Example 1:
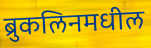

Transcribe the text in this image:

ब्रुकलिनमधील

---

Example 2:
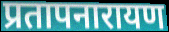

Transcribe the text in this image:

प्रतापनारायण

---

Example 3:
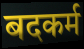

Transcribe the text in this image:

बदकर्म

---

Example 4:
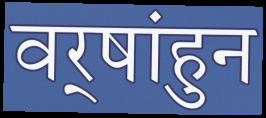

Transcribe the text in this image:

वर्षांहुन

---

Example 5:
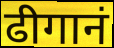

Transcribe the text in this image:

ढीगानं